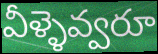
వీళ్ళెవ్వరూ